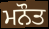
ਮਨੌਤ